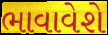
ભાવાવેશે